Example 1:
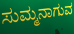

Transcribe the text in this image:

ಸುಮ್ಮನಾಗುವ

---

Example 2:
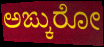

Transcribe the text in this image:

ಅಙ್ಕುರೋ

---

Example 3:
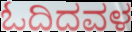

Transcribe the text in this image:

ಓದಿದವಳ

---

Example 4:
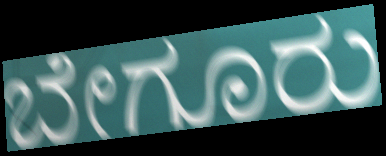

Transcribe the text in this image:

ಬೇಗೂರು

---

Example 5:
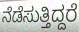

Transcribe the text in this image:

ನೆಡೆಸುತ್ತಿದ್ದರೆ